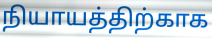
நியாயத்திற்காக